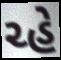
ચ્હે